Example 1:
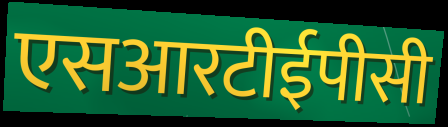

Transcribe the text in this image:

एसआरटीईपीसी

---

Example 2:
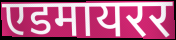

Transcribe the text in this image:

एडमायरर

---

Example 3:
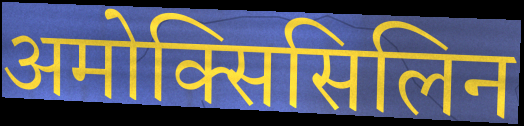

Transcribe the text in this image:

अमोक्सिसिलिन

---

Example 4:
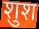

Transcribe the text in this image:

शुश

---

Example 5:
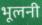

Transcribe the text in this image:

भूलनी